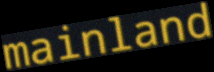
mainland